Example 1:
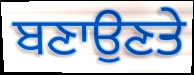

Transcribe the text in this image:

ਬਣਾਉਣਤੇ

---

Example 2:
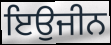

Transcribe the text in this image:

ਇਉਜੀਨ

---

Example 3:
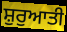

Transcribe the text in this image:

ਸ਼ੁਰੁਆਤੀ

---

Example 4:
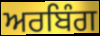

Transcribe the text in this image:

ਅਰਬਿੰਗ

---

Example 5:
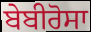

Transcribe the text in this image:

ਬੇਬੀਰੋਸਾ